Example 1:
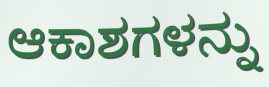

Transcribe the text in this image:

ಆಕಾಶಗಳನ್ನು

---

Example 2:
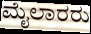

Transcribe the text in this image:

ಮೈಲಾರರು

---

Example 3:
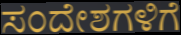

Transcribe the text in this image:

ಸಂದೇಶಗಳಿಗೆ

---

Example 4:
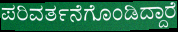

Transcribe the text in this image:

ಪರಿವರ್ತನೆಗೊಂಡಿದ್ದಾರೆ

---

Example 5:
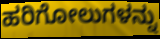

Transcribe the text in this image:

ಹರಿಗೋಲುಗಳನ್ನು